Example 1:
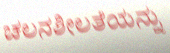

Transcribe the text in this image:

ಚಲನಶೀಲತೆಯನ್ನು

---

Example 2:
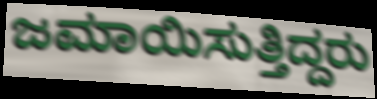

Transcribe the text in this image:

ಜಮಾಯಿಸುತ್ತಿದ್ದರು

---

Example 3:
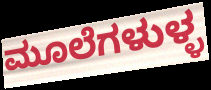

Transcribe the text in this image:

ಮೂಲೆಗಳುಳ್ಳ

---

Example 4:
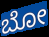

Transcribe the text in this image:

ಬೋ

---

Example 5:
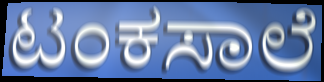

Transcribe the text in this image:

ಟಂಕಸಾಲೆ